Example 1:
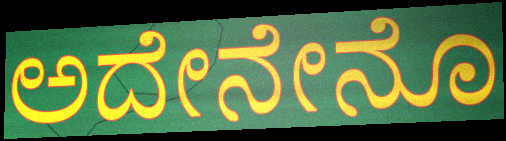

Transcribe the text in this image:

ಅದೇನೇನೊ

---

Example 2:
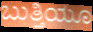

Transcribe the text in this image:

ಬುತ್ತಿಯೂ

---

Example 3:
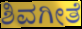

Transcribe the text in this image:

ಶಿವಗೀತೆ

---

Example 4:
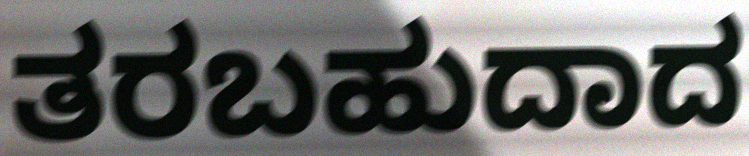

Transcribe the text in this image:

ತರಬಹುದಾದ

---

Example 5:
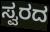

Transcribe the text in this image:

ಸ್ವರದ